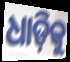
ଧାଡ଼ିକୁ